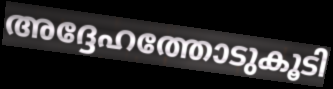
അദ്ദേഹത്തോടുകൂടി